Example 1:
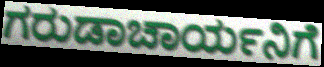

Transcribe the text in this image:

ಗರುಡಾಚಾರ್ಯನಿಗೆ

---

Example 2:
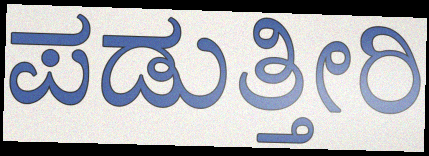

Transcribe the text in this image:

ಪಡುತ್ತೀರಿ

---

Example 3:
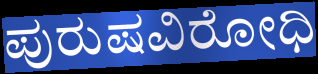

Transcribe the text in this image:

ಪುರುಷವಿರೋಧಿ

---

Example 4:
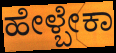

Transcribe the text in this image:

ಹೇಳ್ಬೇಕಾ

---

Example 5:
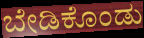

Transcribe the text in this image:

ಬೇಡಿಕೊಂಡು